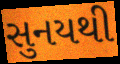
સુનયથી